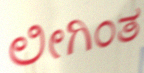
ಲೀಗಿಂತ